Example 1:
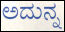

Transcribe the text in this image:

ಅದುನ್ನ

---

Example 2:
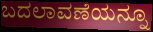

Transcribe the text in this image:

ಬದಲಾವಣೆಯನ್ನೂ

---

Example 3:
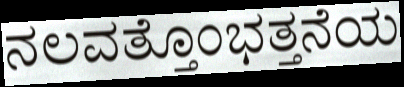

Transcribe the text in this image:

ನಲವತ್ತೊಂಭತ್ತನೆಯ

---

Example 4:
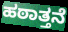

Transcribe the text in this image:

ಹಠಾತ್ತನೆ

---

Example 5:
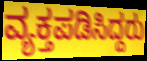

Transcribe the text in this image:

ವ್ಯಕ್ತಪಡಿಸಿದ್ದರು